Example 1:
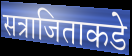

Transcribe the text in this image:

सत्राजिताकडे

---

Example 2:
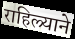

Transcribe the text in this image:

राहिल्याने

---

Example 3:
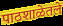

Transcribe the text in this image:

पाठशाळेतले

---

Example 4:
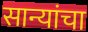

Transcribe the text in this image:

सान्यांचा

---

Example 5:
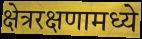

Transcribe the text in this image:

क्षेत्ररक्षणामध्ये